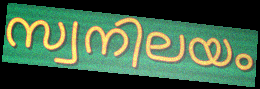
സ്വനിലയം